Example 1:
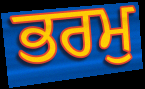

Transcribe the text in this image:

ਭਰਮੁ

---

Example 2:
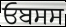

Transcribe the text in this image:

ਓਬਸਸ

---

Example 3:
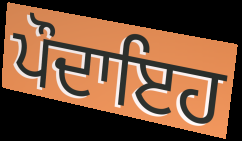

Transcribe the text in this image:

ਪੌਦਾਇਹ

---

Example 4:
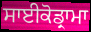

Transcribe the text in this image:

ਸਾਈਕੋਡ੍ਰਾਮਾ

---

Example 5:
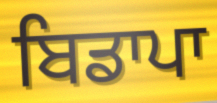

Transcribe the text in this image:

ਬਿਡਾਪਾ